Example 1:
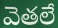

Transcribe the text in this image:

వెతలే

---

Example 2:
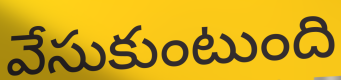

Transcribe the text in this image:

వేసుకుంటుంది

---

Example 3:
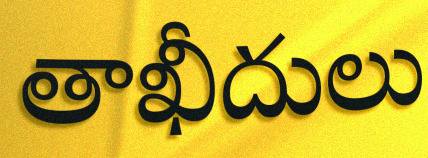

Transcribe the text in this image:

తాఖీదులు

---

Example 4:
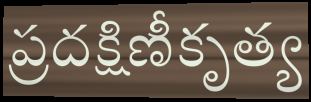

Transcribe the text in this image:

ప్రదక్షిణీకృత్య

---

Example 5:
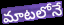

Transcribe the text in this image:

మాటలోనే